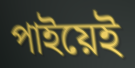
পাইয়েই